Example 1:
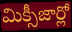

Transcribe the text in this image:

మిక్సీజార్లో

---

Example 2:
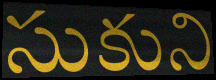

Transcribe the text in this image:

సుకుని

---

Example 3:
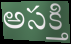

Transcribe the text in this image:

అసక్తి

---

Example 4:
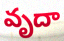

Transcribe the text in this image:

వృదా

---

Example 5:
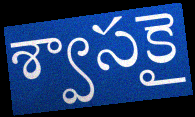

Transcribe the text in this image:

శ్వాసకై